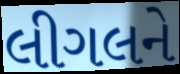
લીગલને